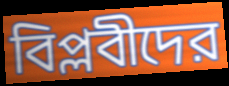
বিপ্লবীদের